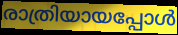
രാത്രിയായപ്പോൾ